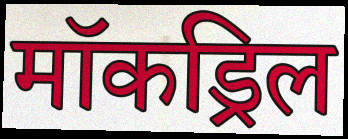
मॉकड्रिल